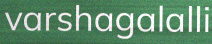
varshagalalli